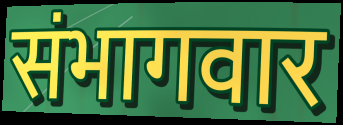
संभागवार